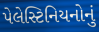
પેલેસ્ટિનિયનોનું